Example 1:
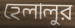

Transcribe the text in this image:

হেলালুর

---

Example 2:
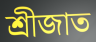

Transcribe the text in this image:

শ্রীজাত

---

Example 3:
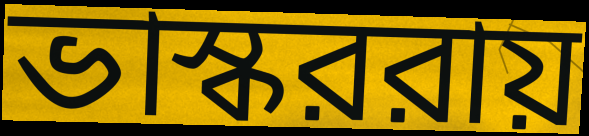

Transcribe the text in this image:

ভাস্কররায়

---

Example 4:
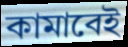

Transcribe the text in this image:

কামাবেই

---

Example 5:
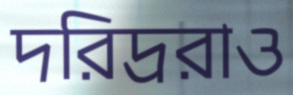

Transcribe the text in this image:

দরিদ্ররাও